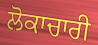
ਲੋਕਾਚਾਰੀ